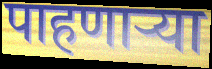
पाहणार्‍या